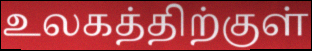
உலகத்திற்குள்